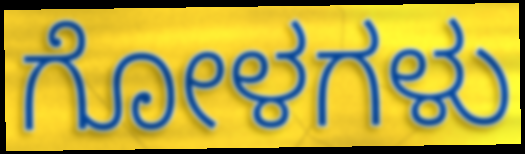
ಗೋಳಗಳು